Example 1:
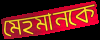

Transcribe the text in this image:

মেহমানকে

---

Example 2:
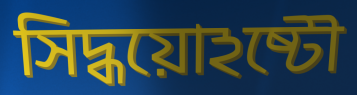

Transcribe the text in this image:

সিদ্ধয়োঽষ্টৌ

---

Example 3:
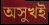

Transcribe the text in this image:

অসুখই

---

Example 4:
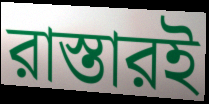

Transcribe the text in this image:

রাস্তারই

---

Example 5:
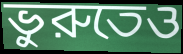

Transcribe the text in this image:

ভুরুতেও